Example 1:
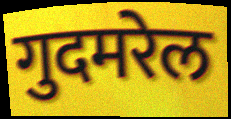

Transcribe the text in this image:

गुदमरेल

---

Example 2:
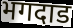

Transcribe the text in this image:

भगदाड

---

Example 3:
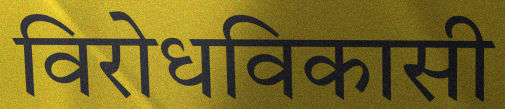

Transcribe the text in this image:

विरोधविकासी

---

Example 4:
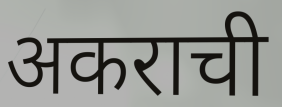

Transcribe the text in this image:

अकराची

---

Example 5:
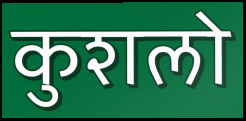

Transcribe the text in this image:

कुशलो